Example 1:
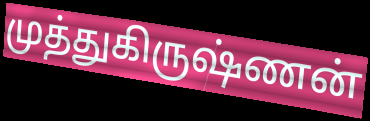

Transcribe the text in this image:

முத்துகிருஷ்ணன்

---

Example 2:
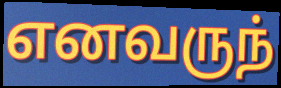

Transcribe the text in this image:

எனவருந்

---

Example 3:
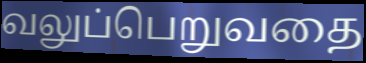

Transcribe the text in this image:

வலுப்பெறுவதை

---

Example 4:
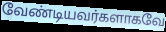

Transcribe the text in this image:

வேண்டியவர்களாகவே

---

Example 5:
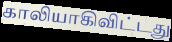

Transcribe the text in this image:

காலியாகிவிட்டது